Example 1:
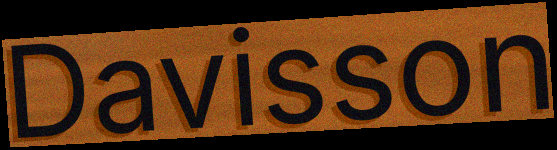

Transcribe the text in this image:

Davisson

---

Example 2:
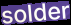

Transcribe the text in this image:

solder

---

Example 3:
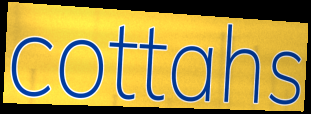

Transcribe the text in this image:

cottahs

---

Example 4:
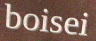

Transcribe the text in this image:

boisei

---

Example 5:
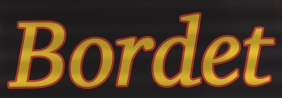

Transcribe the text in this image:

Bordet